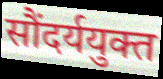
सौंदर्ययुक्त